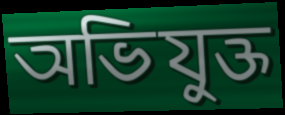
অভিযুক্ত